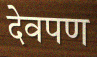
देवपण